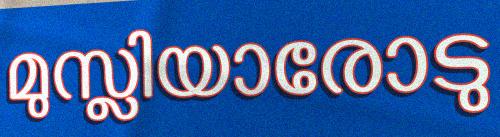
മുസ്ലിയാരോടു